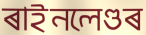
ৰাইনলেণ্ডৰ